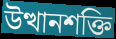
উত্থানশক্তি